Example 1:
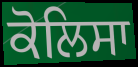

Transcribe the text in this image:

ਕੋਲਿਸਾ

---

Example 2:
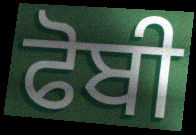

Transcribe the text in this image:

ਫੋਬੀ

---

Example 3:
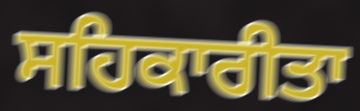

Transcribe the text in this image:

ਸਹਿਕਾਰੀਤਾ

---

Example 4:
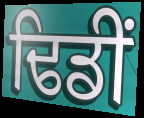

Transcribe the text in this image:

ਢਿਡੀਂ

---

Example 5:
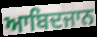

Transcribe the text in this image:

ਆਬਿਦਜਾਨ